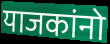
याजकांनो